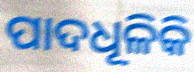
ପାଦଧୂଳିକି